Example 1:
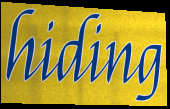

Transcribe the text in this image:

hiding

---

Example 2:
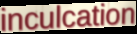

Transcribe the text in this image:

inculcation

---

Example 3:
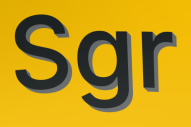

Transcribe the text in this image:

Sgr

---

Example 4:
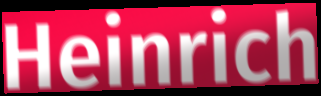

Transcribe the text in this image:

Heinrich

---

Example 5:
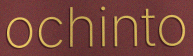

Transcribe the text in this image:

ochinto